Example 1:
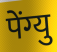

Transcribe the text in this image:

पेंग्यु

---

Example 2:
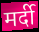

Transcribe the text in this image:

मर्दी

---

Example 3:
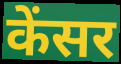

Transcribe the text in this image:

केंसर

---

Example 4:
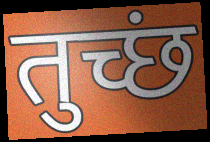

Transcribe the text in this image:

तुच्छं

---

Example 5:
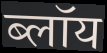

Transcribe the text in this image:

ब्लॉय